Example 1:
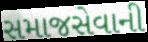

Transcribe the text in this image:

સમાજસેવાની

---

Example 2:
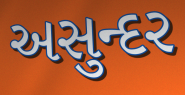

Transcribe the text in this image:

અસુન્દર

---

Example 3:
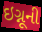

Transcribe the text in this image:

ઇગ્નૂની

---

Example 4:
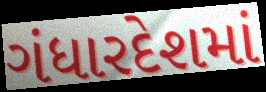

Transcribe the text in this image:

ગંધારદેશમાં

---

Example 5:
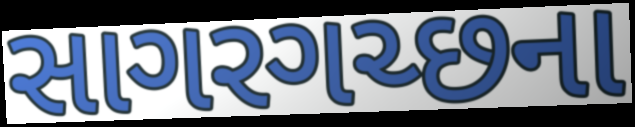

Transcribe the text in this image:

સાગરગચ્છના